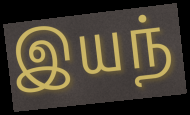
இயந்